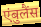
एंबुलैंस